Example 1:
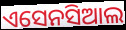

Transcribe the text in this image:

ଏସେନସିଆଲ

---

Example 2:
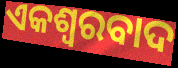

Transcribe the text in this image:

ଏକଶ୍ୱରବାଦ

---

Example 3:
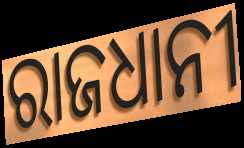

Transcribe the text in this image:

ରାଜଧାନୀ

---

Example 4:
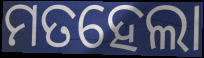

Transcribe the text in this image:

ମତହେଲା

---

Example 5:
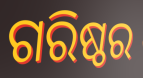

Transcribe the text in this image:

ଗରିଷ୍ଠର